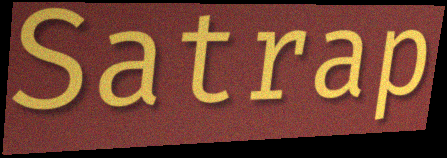
Satrap